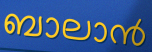
ബാലാൻ